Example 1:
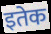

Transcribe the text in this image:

इतेक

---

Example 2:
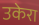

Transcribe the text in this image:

उकेरा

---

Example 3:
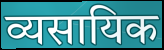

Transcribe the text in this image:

व्यसायिक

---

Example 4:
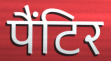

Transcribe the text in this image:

पैंटिर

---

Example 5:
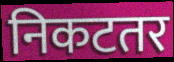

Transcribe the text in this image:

निकटतर